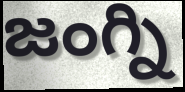
జంగ్ని